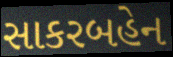
સાકરબહેન